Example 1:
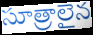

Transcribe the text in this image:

సూత్రాలైన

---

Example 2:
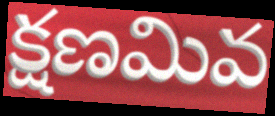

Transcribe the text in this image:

క్షణమివ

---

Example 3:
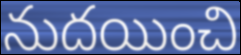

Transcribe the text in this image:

నుదయించి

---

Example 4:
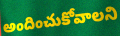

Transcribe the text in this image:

అందించుకోవాలని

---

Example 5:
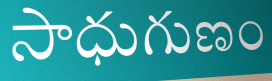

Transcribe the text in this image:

సాధుగుణం